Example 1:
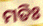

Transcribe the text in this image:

ମତିଃ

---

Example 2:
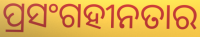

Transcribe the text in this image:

ପ୍ରସଂଗହୀନତାର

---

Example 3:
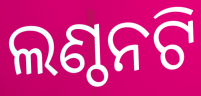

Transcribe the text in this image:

ଲଣ୍ଠନଟି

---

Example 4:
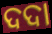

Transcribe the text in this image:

ଦଦା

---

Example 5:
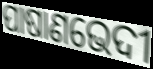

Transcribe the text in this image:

ପାଷାଣଭେଦୀ